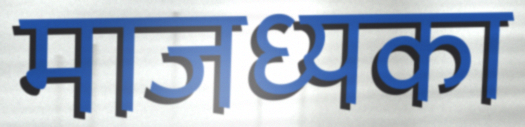
माजध्यका